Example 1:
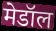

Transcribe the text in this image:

मेडॉल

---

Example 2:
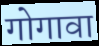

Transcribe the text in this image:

गोगावा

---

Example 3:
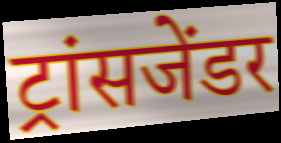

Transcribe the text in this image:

ट्रांसजेंडर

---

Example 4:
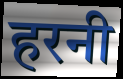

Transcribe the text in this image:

हरनी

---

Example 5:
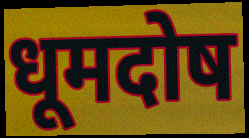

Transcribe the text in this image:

धूमदोष